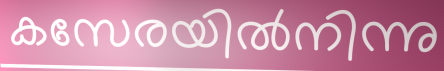
കസേരയിൽനിന്നു